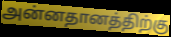
அன்னதானத்திற்கு